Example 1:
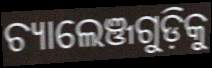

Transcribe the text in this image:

ଚ୍ୟାଲେଞ୍ଜଗୁଡ଼ିକୁ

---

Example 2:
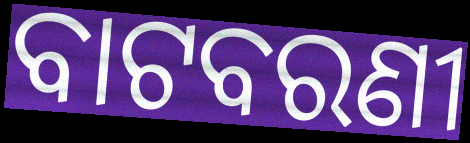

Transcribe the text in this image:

ବାଟବରଣୀ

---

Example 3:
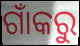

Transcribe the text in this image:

ଗାଁକରୁ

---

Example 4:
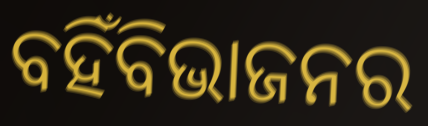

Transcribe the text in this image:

ବହିଁବିଭାଜନର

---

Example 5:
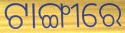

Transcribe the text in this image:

ଟାଙ୍ଗୀରେ